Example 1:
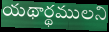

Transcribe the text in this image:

యథార్థములని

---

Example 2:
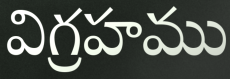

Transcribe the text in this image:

విగ్రహము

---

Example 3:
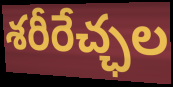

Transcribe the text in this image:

శరీరేచ్ఛల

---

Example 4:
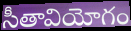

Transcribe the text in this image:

సీతావియోగం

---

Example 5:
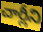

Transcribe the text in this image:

చార్లీని